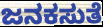
ಜನಕಸುತೆ